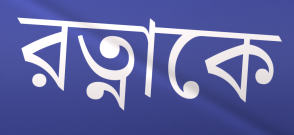
রত্নাকে